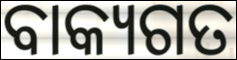
ବାକ୍ୟଗତ